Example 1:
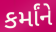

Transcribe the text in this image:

કર્માંને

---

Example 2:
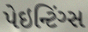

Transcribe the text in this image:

પેઇન્ટિંગ્સ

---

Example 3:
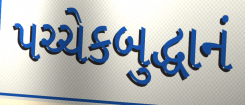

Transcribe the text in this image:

પચ્ચેકબુદ્ધાનં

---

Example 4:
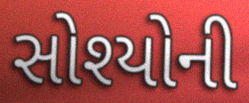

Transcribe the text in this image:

સોશ્યોની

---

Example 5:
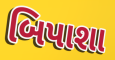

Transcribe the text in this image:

બિપાશા